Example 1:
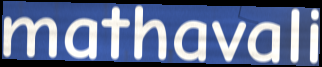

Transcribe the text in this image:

mathavali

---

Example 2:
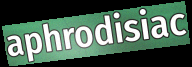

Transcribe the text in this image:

aphrodisiac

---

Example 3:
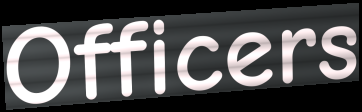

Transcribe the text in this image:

Officers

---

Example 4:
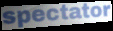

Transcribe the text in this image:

spectator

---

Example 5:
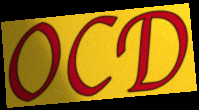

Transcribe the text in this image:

OCD